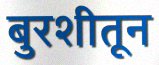
बुरशीतून